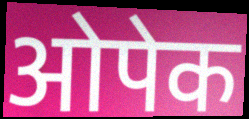
ओपेक